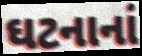
ઘટનાનાં